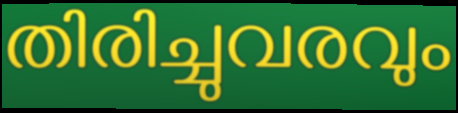
തിരിച്ചുവരവും